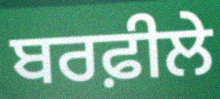
ਬਰਫ਼ੀਲੇ